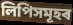
লিপিসমূহৰ